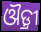
ଔଡ଼୍ରୀ